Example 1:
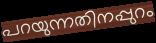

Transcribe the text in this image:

പറയുന്നതിനപ്പുറം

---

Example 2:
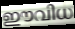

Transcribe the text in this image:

ഈവിധ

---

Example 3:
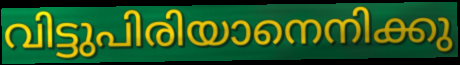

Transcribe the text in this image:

വിട്ടുപിരിയാനെനിക്കു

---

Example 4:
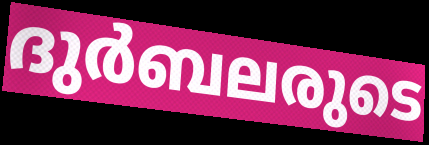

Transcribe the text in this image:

ദുർബലരുടെ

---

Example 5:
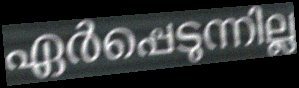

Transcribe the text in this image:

ഏർപ്പെടുന്നില്ല